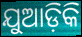
ଯୁଆଡ଼ିକି